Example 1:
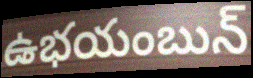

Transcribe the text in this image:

ఉభయంబున్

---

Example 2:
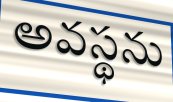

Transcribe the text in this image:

అవస్థను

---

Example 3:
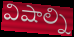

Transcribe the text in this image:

విషాల్ని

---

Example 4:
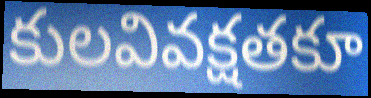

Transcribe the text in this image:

కులవివక్షతకూ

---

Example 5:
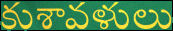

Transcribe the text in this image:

కుశావళులు